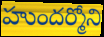
హుందర్మోని